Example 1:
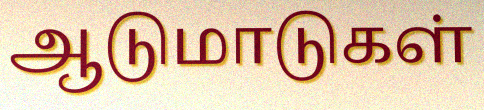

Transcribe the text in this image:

ஆடுமாடுகள்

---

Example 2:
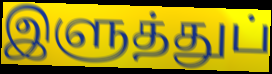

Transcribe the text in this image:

இளுத்துப்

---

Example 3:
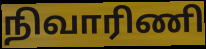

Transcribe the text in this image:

நிவாரிணி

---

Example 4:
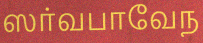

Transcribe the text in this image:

ஸர்வபாவேந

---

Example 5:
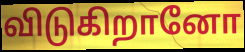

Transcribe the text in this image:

விடுகிறானோ